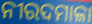
ନୀରଦମାଳା